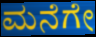
ಮನೆಗೇ